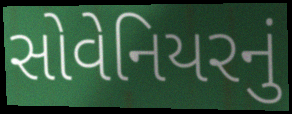
સોવેનિયરનું